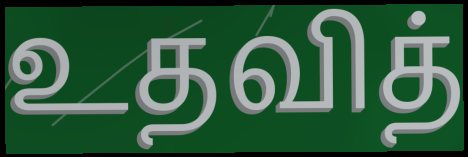
உதவித்